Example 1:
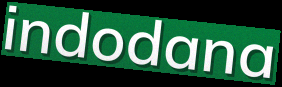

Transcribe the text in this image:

indodana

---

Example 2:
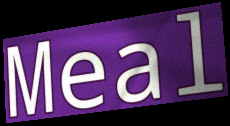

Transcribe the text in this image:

Meal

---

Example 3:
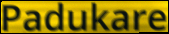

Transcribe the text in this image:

Padukare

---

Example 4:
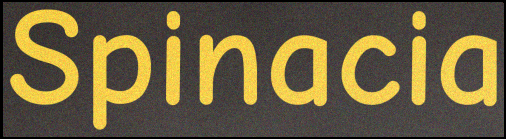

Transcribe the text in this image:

Spinacia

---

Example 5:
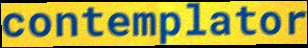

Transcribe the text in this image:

contemplator